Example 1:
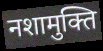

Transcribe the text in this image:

नशामुक्ति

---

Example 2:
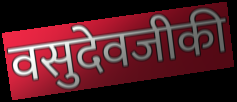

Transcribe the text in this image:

वसुदेवजीकी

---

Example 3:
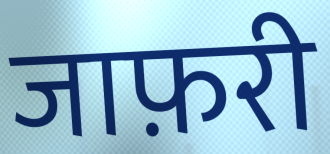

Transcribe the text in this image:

जाफ़री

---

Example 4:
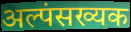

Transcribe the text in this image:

अल्पंसख्यक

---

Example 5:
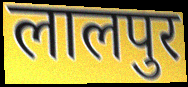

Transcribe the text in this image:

लालपुर